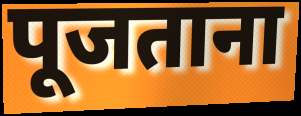
पूजताना